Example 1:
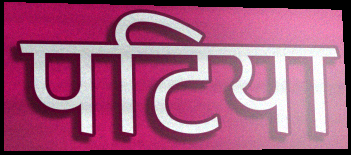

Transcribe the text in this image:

पटिया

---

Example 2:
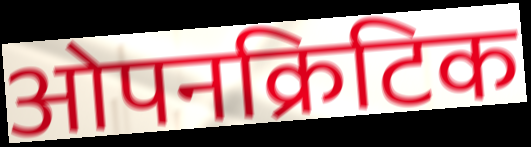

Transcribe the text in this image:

ओपनक्रिटिक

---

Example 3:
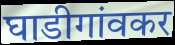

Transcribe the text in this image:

घाडीगांवकर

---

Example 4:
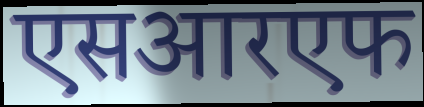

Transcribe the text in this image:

एसआरएफ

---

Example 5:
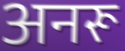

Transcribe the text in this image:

अनरू